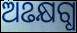
ଅଌକ୍ଷଗ୍ଧ